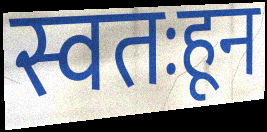
स्वतःहून